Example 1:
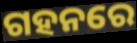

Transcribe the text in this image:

ଗହନରେ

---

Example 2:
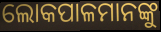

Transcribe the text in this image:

ଲୋକପାଳମାନଙ୍କୁ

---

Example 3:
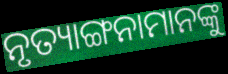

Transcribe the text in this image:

ନୃତ୍ୟାଙ୍ଗନାମାନଙ୍କୁ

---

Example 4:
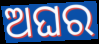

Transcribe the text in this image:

ଅଘର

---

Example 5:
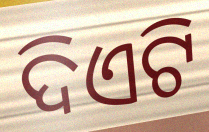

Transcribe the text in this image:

ଦିଏଟି